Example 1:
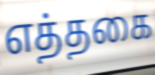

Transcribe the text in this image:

எத்தகை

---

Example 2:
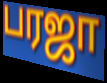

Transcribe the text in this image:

பரஜா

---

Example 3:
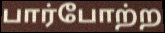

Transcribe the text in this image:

பார்போற்ற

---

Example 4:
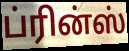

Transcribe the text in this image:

ப்ரின்ஸ்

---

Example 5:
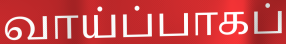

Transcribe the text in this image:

வாய்ப்பாகப்